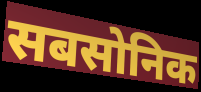
सबसोनिक